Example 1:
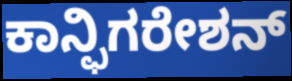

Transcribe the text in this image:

ಕಾನ್ಫಿಗರೇಶನ್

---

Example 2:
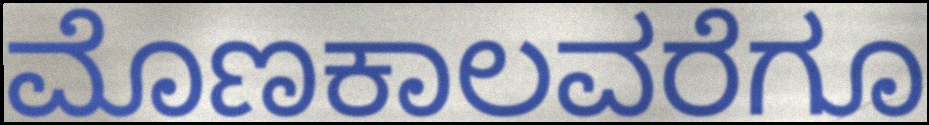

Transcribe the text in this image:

ಮೊಣಕಾಲವರೆಗೂ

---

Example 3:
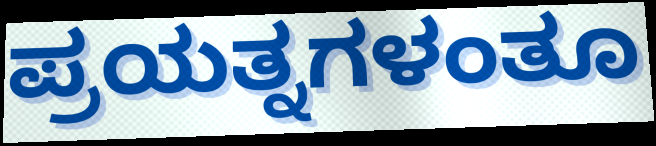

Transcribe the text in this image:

ಪ್ರಯತ್ನಗಳಂತೂ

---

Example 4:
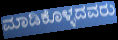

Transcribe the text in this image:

ಮಾಡಿಕೊಳ್ಳದವರು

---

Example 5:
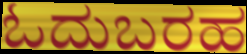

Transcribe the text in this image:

ಓದುಬರಹ